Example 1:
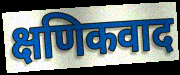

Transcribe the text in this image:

क्षणिकवाद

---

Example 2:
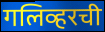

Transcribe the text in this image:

गलिव्हरची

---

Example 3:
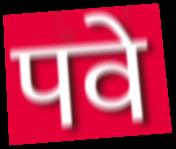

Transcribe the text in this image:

पवे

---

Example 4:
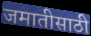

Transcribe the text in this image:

जमातीसाठी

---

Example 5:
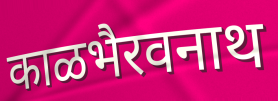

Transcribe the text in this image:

काळभैरवनाथ